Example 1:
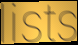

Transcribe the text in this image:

lists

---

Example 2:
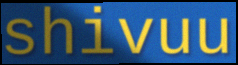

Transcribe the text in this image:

shivuu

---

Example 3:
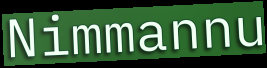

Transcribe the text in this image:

Nimmannu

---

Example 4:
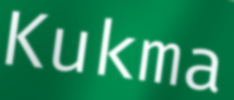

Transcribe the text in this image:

Kukma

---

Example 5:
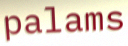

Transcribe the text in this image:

palams